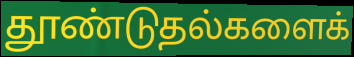
தூண்டுதல்களைக்